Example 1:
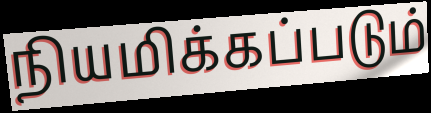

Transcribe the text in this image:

நியமிக்கப்படும்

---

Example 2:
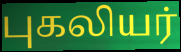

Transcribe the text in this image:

புகலியர்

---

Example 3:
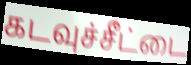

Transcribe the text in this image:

கடவுச்சீட்டை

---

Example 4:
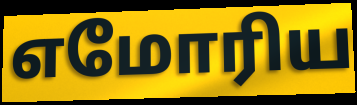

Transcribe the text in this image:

எமோரிய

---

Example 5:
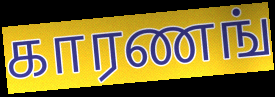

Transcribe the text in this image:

காரணங்